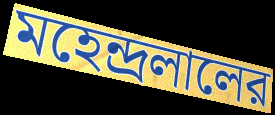
মহেন্দ্রলালের